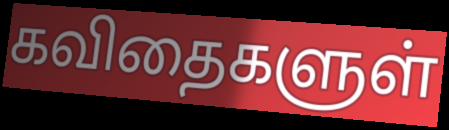
கவிதைகளுள்